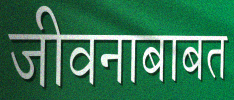
जीवनाबाबत